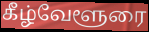
கீழ்வேளூரை